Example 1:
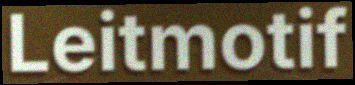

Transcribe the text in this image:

Leitmotif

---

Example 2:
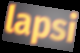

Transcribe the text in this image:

lapsi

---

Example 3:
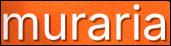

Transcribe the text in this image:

muraria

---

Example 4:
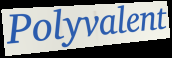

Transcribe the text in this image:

Polyvalent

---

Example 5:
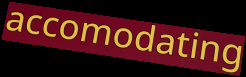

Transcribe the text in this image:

accomodating